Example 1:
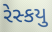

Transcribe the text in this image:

રેસ્કયુ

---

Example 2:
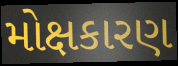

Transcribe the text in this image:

મોક્ષકારણ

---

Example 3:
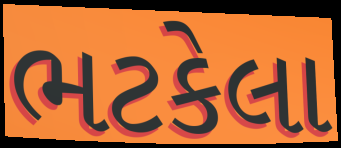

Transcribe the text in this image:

ભટકેલા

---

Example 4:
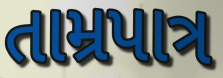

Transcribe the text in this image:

તામ્રપાત્ર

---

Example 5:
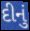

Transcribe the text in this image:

દીનું